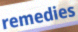
remedies